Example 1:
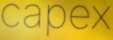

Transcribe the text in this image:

capex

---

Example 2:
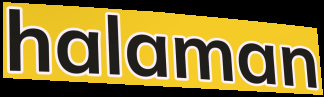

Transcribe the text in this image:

halaman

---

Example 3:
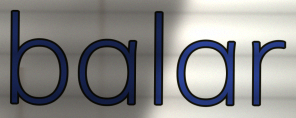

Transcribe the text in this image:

balar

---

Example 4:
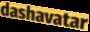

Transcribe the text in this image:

dashavatar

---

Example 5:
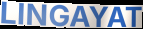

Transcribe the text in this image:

LINGAYAT